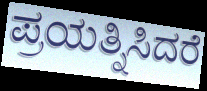
ಪ್ರಯತ್ನಿಸಿದರೆ